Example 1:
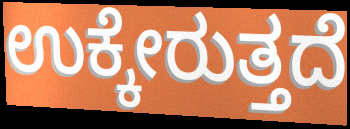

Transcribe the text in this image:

ಉಕ್ಕೇರುತ್ತದೆ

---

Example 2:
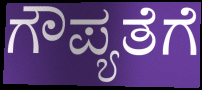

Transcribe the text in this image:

ಗೌಪ್ಯತೆಗೆ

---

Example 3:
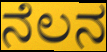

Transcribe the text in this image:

ನೆಲನ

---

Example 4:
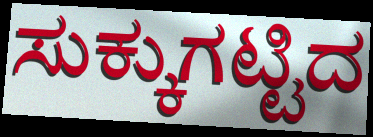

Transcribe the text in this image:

ಸುಕ್ಕುಗಟ್ಟಿದ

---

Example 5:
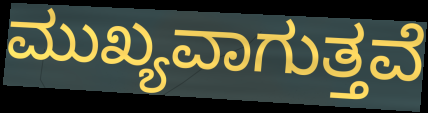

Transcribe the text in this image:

ಮುಖ್ಯವಾಗುತ್ತವೆ